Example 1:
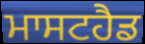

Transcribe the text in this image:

ਮਾਸਟਹੈਡ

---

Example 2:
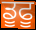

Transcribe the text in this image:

ਡੂਫੂ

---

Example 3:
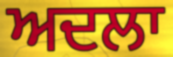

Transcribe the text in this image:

ਅਦਲਾ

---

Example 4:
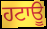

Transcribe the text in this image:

ਹਟਾਊ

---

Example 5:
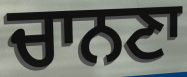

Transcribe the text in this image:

ਚਾਨਣਾ